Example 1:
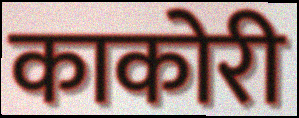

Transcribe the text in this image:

काकोरी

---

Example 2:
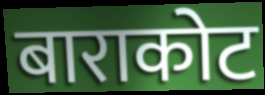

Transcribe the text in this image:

बाराकोट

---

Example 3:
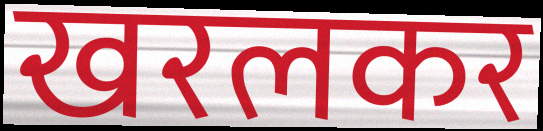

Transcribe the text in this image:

खरलकर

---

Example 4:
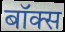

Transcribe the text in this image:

बॉक्‍स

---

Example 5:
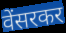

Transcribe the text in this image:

वेंसरकर